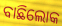
ବାଛିଲୋକ